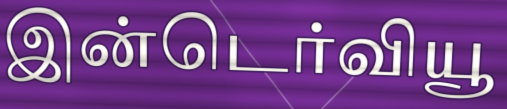
இன்டெர்வியூ